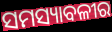
ସମସ୍ୟାବଳୀର